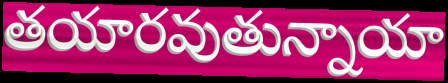
తయారవుతున్నాయా